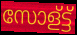
സോള്ട്ട്